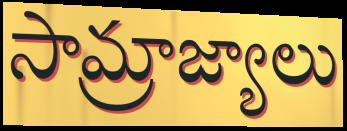
సామ్రాజ్యాలు